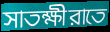
সাতক্ষীরাতে